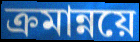
ক্রমান্নয়ে